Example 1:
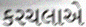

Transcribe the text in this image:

કરચલાએ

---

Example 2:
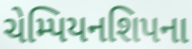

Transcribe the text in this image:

ચેમ્પિયનશિપના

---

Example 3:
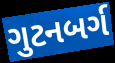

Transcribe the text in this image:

ગુટનબર્ગ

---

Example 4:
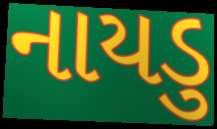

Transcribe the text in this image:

નાયડુ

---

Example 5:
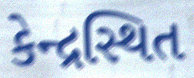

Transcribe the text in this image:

કેન્દ્રસ્થિત